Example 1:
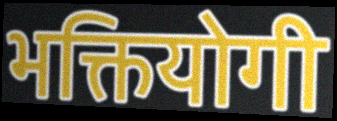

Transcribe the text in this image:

भक्तियोगी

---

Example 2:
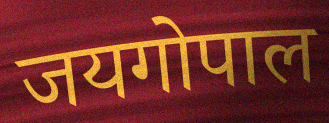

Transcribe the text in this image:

जयगोपाल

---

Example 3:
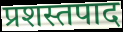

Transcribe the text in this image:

प्रशस्तपाद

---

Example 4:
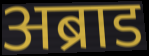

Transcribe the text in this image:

अब्राड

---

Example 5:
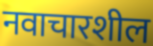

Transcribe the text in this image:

नवाचारशील